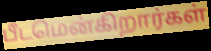
பீடமென்கிறார்கள்